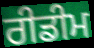
ਰੀਡੀਮ